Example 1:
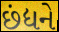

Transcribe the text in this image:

છંદ્યને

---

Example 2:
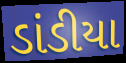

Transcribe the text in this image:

ડાંડીયા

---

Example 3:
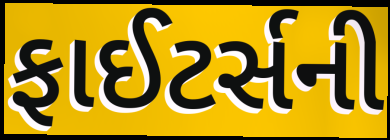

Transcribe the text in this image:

ફાઈટર્સની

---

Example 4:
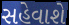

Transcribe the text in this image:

સહેવાશે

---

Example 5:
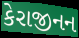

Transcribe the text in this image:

કેરાજીનન